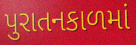
પુરાતનકાળમાં